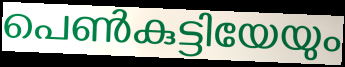
പെൺകുട്ടിയേയും